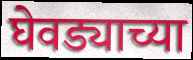
घेवड्याच्या